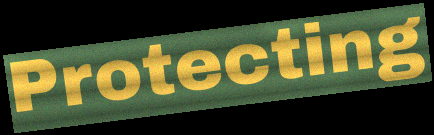
Protecting